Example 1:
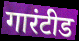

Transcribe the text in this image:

गारंटीड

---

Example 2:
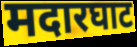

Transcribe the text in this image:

मदारघाट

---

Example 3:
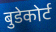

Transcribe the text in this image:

बुडेकोर्ट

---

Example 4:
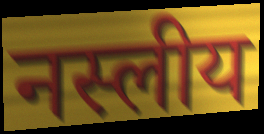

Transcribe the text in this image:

नस्लीय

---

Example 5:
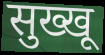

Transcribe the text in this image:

सुख्खू